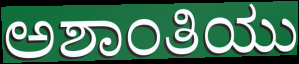
ಅಶಾಂತಿಯು